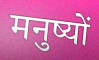
मनुष्यों